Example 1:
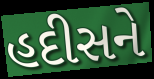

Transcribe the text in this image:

હદીસને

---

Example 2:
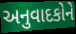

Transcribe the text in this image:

અનુવાદકોને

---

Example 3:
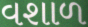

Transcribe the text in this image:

વશાળ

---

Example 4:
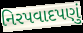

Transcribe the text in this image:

નિરપવાદપણું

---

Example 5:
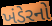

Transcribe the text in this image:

ખંડેરનો